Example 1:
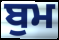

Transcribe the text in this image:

ਬੁਮ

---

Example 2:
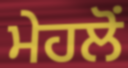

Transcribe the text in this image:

ਮੇਹਲੋਂ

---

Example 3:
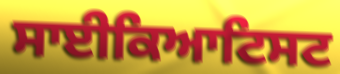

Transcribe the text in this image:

ਸਾਈਕਿਆਟਿਸਟ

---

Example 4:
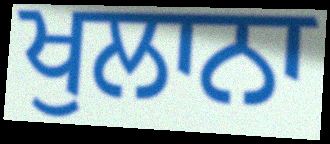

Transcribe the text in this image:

ਖੁਲਾਨਾ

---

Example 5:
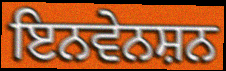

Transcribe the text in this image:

ਇਨਵੇਨਸ਼ਨ